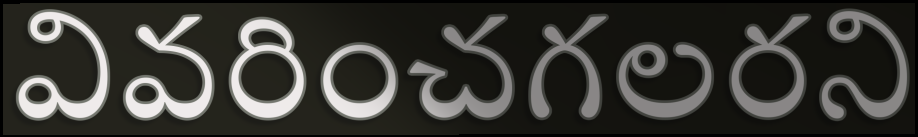
వివరించగలరని